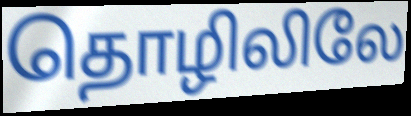
தொழிலிலே